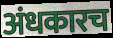
अंधकारच